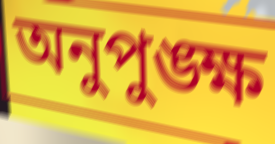
অনুপুঙ্ক্ষ